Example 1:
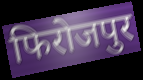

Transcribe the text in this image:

फिरोजपुर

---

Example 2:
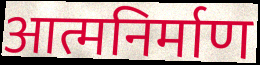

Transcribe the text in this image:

आत्मनिर्माण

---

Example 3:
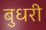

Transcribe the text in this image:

बुधरी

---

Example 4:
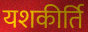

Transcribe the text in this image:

यशकीर्ति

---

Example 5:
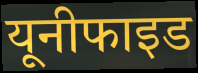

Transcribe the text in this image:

यूनीफाइड